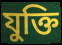
যুক্তি